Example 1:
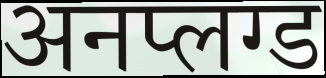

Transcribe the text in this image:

अनप्लग्ड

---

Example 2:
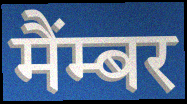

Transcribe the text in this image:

मैंम्बर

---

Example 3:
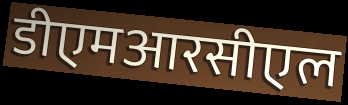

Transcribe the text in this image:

डीएमआरसीएल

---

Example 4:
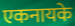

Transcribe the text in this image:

एकनायके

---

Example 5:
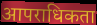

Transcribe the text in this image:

आपराधिकता